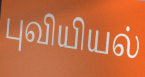
புவியியல்